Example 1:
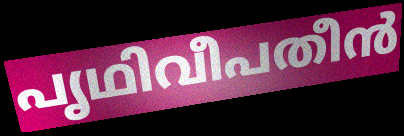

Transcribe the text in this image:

പൃഥിവീപതീൻ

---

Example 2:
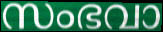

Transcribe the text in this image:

സംഭവാ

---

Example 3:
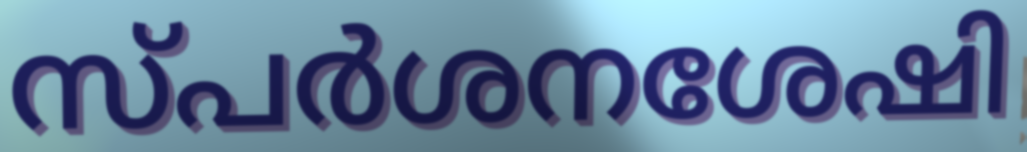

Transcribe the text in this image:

സ്പർശനശേഷി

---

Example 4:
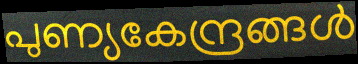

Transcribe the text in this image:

പുണ്യകേന്ദ്രങ്ങൾ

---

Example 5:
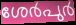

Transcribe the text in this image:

ശേർപുർ